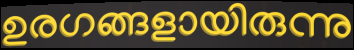
ഉരഗങ്ങളായിരുന്നു